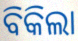
ବିକିଲା